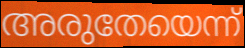
അരുതേയെന്ന്